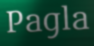
Pagla